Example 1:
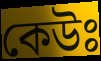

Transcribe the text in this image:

কেউঃ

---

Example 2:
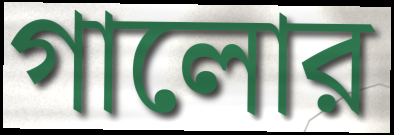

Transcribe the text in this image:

গালোর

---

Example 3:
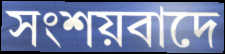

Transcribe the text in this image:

সংশয়বাদে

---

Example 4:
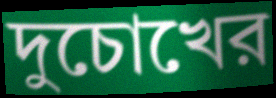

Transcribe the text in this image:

দুচোখের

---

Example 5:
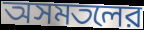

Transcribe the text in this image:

অসমতলের